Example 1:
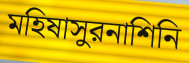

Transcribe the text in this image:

মহিষাসুরনাশিনি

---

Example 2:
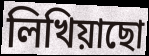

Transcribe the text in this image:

লিখিয়াছো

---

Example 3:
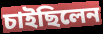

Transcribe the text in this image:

চাইছিলেন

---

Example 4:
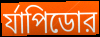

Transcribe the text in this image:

র্যাপিডোর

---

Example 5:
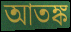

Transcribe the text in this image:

আতঙ্ক